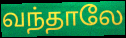
வந்தாலே